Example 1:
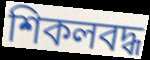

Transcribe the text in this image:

শিকলবদ্ধ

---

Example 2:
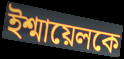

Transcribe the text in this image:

ইশ্মায়েলকে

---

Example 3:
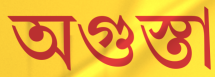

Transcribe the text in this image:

অগুস্তা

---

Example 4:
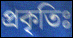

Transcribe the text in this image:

প্রকৃতিঃ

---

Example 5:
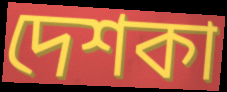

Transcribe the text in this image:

দেশকা